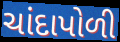
ચાંદાપોળી